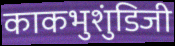
काकभुशुंडिजी